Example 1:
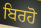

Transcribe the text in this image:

ਬਿਰਹੋ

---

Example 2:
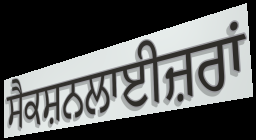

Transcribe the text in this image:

ਸੈਕਸ਼ਨਲਾਈਜ਼ਰਾਂ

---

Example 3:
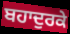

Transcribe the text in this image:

ਬਹਾਦੁਰਕੇ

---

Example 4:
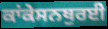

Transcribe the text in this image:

ਕਾਂਕੇਸਨਥੁਰਈ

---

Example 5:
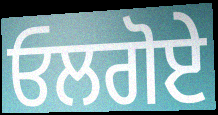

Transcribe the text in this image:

ਓਲਗੋਏ